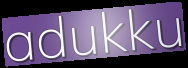
adukku